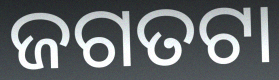
ଜଗତଟା